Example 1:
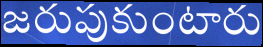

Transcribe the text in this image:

జరుపుకుంటారు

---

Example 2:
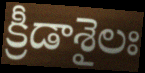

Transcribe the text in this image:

క్రీడాశైలః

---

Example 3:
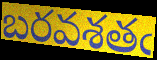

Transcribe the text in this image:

బరవశతఁ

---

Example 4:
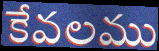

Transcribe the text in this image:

కేవలము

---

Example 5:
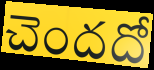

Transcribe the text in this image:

చెందదో